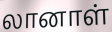
லானாள்